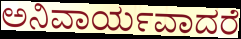
ಅನಿವಾರ್ಯವಾದರೆ